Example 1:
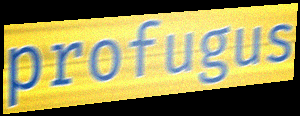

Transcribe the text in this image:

profugus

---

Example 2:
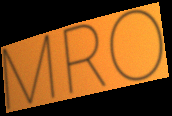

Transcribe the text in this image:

MRO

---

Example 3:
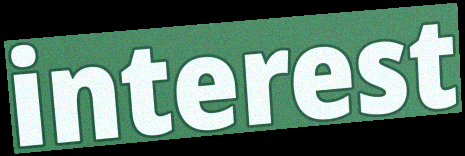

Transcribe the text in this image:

interest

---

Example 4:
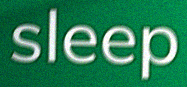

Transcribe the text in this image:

sleep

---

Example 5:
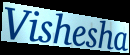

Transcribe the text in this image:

Vishesha